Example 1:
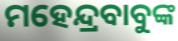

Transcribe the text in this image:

ମହେନ୍ଦ୍ରବାବୁଙ୍କ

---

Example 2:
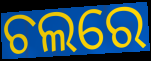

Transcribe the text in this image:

ଚଲରେ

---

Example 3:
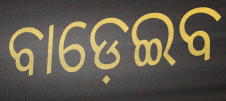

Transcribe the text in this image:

ବାଡ଼େଇବ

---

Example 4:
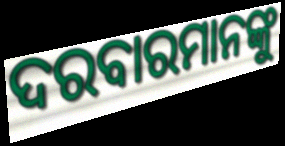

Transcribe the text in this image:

ଦରବାରମାନଙ୍କୁ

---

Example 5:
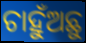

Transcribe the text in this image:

ଚାହୁଁଅଛୁ